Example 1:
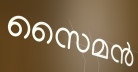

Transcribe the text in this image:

സൈമൻ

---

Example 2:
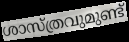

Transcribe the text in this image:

ശാസ്ത്രവുമുണ്ട്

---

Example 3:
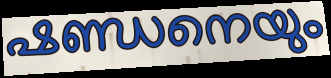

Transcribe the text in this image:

ഷണ്ഡനെയും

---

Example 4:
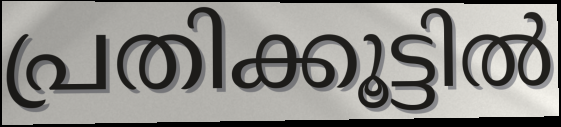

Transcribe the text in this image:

പ്രതിക്കൂട്ടിൽ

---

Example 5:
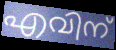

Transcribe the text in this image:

എവിന്